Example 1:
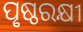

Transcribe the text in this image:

ପୃଷ୍ଠରକ୍ଷୀ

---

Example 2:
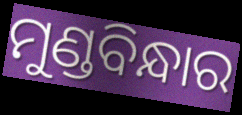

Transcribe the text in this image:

ମୁଣ୍ଡବିନ୍ଧାର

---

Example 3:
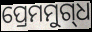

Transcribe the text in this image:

ପ୍ରେମମୁଗ୍‌ଧ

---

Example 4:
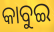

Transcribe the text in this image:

କାବୁଇ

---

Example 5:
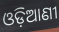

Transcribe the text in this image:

ଓଡ଼ିଆଣୀ